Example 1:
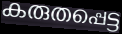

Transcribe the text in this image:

കരുതപ്പെട്ട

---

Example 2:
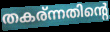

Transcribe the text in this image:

തകര്ന്നതിന്റെ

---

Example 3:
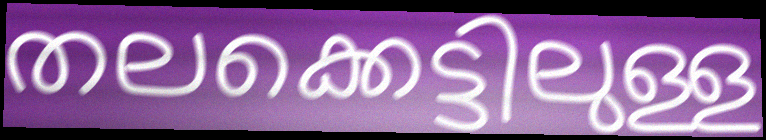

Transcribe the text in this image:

തലക്കെട്ടിലുള്ള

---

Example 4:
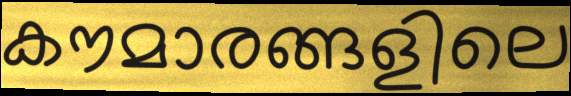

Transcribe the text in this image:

കൗമാരങ്ങളിലെ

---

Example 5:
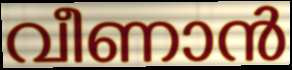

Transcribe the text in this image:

വീണാൻ